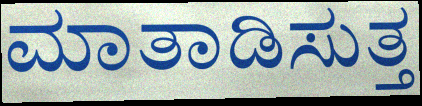
ಮಾತಾಡಿಸುತ್ತ